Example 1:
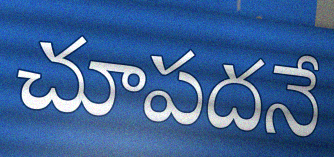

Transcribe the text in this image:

చూపదనే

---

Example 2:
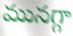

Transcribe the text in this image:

మునగ్గా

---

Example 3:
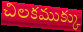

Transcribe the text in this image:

చిలకముక్కు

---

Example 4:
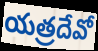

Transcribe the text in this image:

యత్రదేవో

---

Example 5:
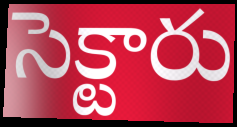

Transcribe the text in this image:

సెక్టారు